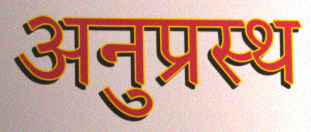
अनुप्रस्थ